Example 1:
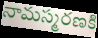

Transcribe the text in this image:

నామస్మరణకి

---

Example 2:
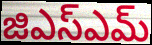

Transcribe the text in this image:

జిఎస్ఎమ్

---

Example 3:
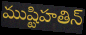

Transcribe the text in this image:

ముష్టిహతిన్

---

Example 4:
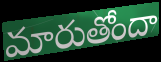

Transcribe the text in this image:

మారుతోందా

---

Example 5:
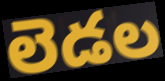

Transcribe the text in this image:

లెడల